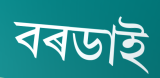
বৰডাই